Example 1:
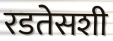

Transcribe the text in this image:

रडतेसशी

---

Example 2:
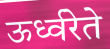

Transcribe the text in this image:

ऊर्ध्वरेते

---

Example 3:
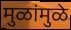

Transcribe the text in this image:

मुळांमुळे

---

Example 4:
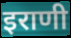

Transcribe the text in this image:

इराणी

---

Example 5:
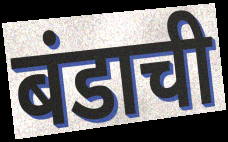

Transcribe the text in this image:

बंडाची